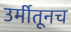
उर्मीतूनच